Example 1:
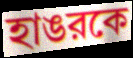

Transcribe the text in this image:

হাঙরকে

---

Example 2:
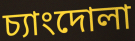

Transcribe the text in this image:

চ্যাংদোলা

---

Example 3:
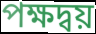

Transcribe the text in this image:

পক্ষদ্বয়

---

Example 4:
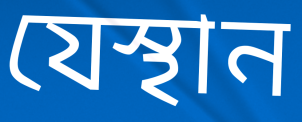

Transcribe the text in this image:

যেস্থান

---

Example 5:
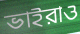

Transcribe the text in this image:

ভাইরাও